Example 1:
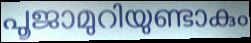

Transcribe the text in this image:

പൂജാമുറിയുണ്ടാകും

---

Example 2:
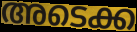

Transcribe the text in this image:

അടെക്ക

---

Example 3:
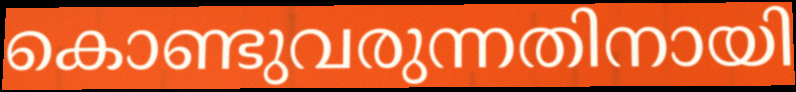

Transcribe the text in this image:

കൊണ്ടുവരുന്നതിനായി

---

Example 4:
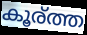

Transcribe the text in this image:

കൂര്ത്ത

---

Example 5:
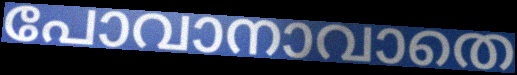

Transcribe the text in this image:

പോവാനാവാതെ